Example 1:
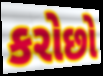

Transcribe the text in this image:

કરોછો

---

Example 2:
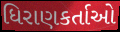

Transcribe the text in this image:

ધિરાણકર્તાઓ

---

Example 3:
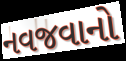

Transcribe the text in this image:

નવજવાનો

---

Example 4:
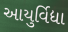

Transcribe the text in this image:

આયુર્વિદ્યા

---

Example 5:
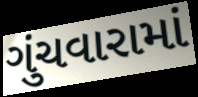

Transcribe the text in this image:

ગુંચવારામાં